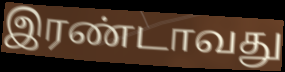
இரண்டாவது